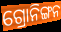
ଗ୍ରୋନିଙ୍ଗନ